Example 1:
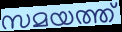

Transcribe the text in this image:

സമയത്ത്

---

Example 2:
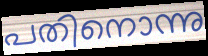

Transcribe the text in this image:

പതിനൊന്നു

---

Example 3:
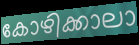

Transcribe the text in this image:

കോഴിക്കാലാ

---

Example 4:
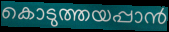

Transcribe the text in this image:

കൊടുത്തയപ്പാൻ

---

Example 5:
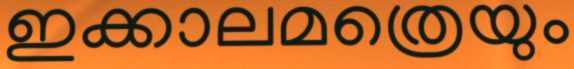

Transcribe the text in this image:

ഇക്കാലമത്രെയും